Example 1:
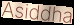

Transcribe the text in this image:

Asiddha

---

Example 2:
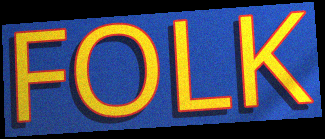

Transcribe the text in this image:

FOLK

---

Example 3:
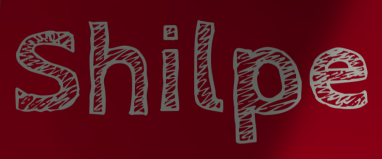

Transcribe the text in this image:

Shilpe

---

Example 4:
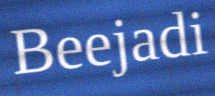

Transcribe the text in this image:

Beejadi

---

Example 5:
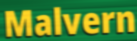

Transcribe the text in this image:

Malvern